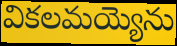
వికలమయ్యెను